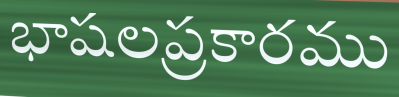
భాషలప్రకారము